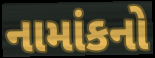
નામાંકનો